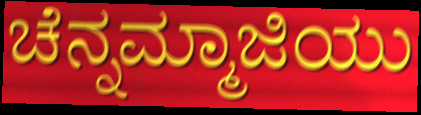
ಚೆನ್ನಮ್ಮಾಜಿಯು